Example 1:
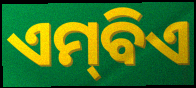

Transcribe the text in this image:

ଏମ୍‌ବିଏ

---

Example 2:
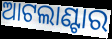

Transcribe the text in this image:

ଆଟଲାଣ୍ଟାର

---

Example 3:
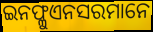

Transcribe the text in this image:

ଇନଫ୍ଳୁଏନସରମାନେ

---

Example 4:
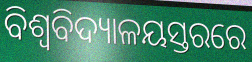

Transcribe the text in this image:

ବିଶ୍ୱବିଦ୍ୟାଳୟସ୍ତରରେ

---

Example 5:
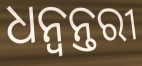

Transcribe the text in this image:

ଧନ୍ବନ୍ତରୀ